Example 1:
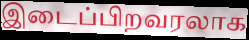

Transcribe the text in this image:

இடைப்பிறவரலாக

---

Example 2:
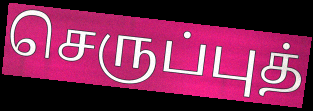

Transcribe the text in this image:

செருப்புத்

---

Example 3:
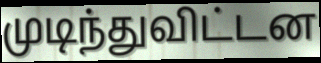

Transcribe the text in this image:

முடிந்துவிட்டன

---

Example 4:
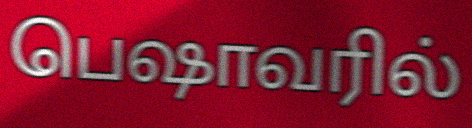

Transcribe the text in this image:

பெஷாவரில்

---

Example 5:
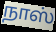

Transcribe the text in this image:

நாஸ்